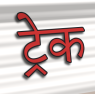
ट्रेक